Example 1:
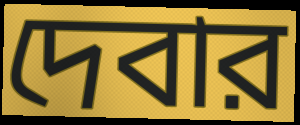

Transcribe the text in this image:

দেবার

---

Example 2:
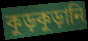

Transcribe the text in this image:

কুড়কুড়ানি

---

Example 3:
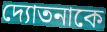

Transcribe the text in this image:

দ্যোতনাকে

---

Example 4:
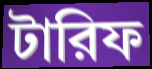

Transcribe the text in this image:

টারিফ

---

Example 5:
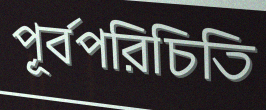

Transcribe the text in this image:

পূর্বপরিচিতি